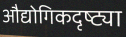
औद्योगिकदृष्ट्या